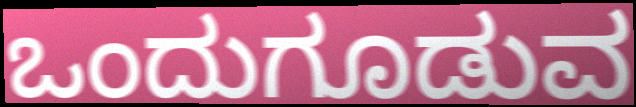
ಒಂದುಗೂಡುವ